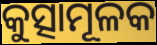
କୁତ୍ସାମୂଳକ